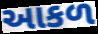
આકળ